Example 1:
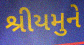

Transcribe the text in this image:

શ્રીયમુને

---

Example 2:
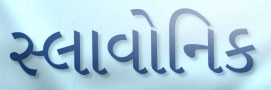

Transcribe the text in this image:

સ્લાવોનિક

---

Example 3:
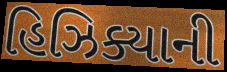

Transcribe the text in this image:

હિઝિક્યાની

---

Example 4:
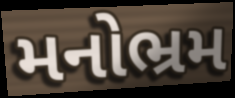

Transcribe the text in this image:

મનોભ્રમ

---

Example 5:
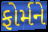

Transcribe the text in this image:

ફોર્મને